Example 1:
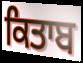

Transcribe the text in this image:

ਕਿਤਾਬ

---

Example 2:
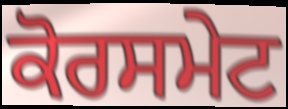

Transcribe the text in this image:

ਕੋਰਸਮੇਟ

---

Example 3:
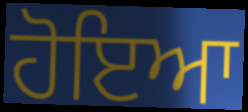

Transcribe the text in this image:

ਹੋਇਆ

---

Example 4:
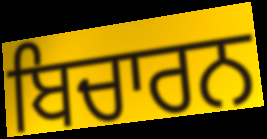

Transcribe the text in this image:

ਬਿਚਾਰਨ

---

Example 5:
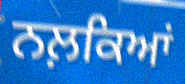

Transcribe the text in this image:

ਨਲ਼ਕਿਆਂ